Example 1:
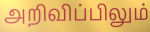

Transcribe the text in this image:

அறிவிப்பிலும்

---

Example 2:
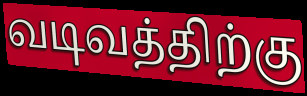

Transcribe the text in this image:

வடிவத்திற்கு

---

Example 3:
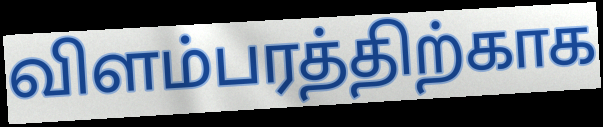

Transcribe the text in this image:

விளம்பரத்திற்காக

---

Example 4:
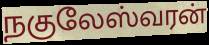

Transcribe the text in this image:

நகுலேஸ்வரன்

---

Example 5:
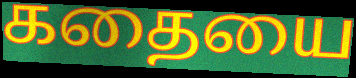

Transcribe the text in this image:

கதையை